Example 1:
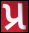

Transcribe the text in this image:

પ્ર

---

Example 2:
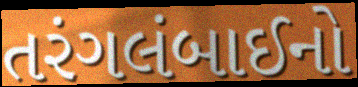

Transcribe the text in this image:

તરંગલંબાઈનો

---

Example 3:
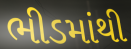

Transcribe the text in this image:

ભીડમાંથી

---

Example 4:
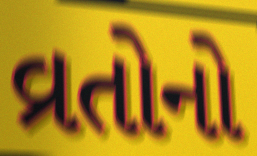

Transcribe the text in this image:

વ્રતોનો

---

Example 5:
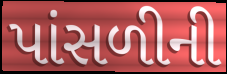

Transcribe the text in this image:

પાંસળીની